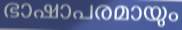
ഭാഷാപരമായും